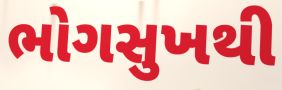
ભોગસુખથી